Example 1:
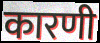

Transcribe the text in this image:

कारणी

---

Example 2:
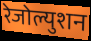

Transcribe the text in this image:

रेजोल्युशन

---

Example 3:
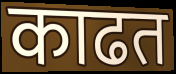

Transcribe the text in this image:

काढत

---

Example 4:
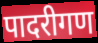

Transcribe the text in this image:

पादरीगण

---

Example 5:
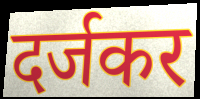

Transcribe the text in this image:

दर्जकर